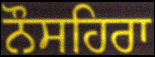
ਨੌਸਹਿਰਾ